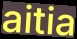
aitia